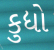
કુદ્યો